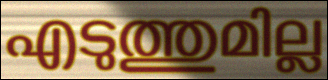
എടുത്തുമില്ല